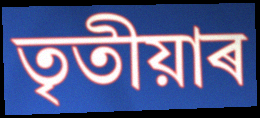
তৃতীয়াৰ